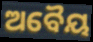
ଅବୈୟ